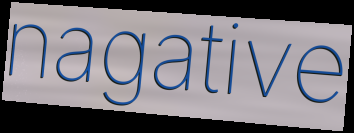
nagative